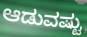
ಆಡುವಷ್ಟು